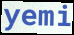
yemi